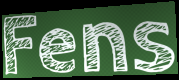
Fens